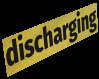
discharging